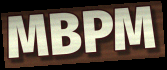
MBPM